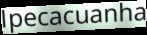
Ipecacuanha